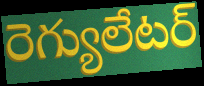
రెగ్యులేటర్